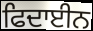
ਫਿਦਾਈਨ